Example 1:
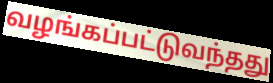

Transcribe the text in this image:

வழங்கப்பட்டுவந்தது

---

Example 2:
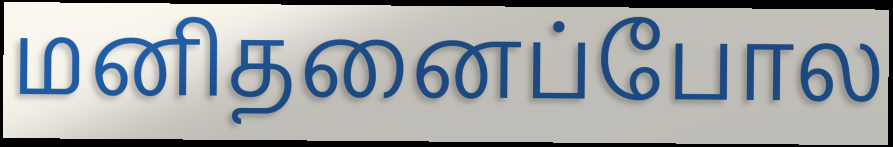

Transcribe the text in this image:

மனிதனைப்போல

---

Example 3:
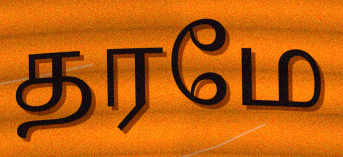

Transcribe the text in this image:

தரமே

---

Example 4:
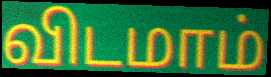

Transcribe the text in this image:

விடமாம்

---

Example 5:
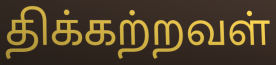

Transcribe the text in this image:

திக்கற்றவள்